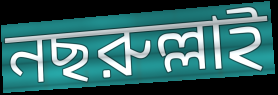
নছৰুল্লাই